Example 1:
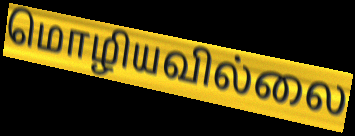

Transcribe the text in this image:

மொழியவில்லை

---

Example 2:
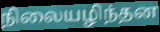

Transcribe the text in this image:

நிலையழிந்தன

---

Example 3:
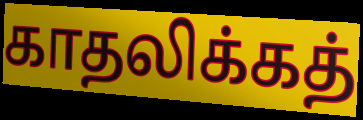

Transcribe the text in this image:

காதலிக்கத்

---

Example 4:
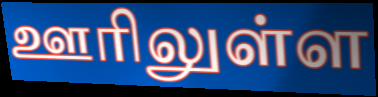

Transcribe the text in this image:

ஊரிலுள்ள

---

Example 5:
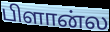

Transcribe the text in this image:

பிளான்ல